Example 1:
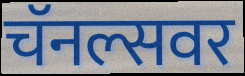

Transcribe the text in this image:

चॅनल्सवर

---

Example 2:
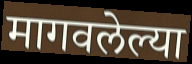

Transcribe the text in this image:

मागवलेल्या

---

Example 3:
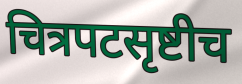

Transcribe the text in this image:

चित्रपटसृष्टीच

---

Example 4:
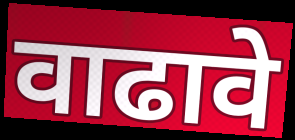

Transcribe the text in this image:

वाढावे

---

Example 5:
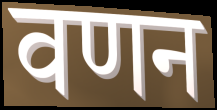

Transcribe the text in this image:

वणन